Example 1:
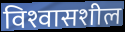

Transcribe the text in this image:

विश्वासशील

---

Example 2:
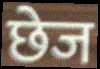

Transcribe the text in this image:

छेज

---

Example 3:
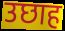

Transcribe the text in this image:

उछाह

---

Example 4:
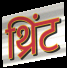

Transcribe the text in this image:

थ्रिंट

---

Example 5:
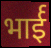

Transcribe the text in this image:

भार्ई